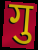
गु